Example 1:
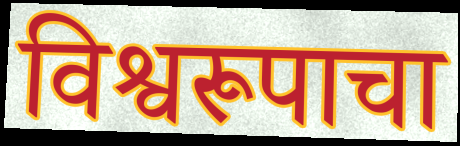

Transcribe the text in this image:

विश्वरूपाचा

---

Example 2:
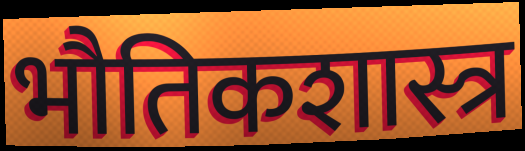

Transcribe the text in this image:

भौतिकशास्त्र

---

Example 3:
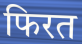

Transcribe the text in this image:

फिरत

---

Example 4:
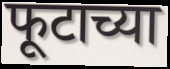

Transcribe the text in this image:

फूटाच्या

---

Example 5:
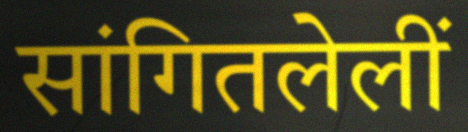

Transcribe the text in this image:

सांगितलेलीं